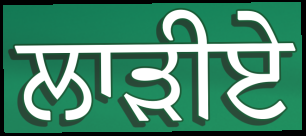
ਲਾੜੀਏ